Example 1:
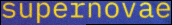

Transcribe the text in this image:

supernovae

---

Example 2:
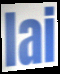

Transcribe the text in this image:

lai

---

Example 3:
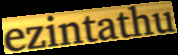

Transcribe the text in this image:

ezintathu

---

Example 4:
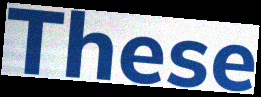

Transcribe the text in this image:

These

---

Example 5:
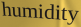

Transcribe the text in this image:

humidity